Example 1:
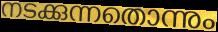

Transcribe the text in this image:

നടക്കുന്നതൊന്നും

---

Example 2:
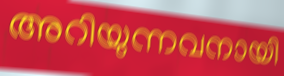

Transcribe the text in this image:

അറിയുന്നവനായി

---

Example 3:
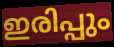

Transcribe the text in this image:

ഇരിപ്പും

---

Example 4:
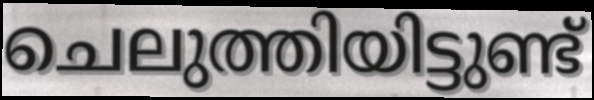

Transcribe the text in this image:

ചെലുത്തിയിട്ടുണ്ട്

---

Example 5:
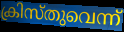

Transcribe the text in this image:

ക്രിസ്തുവെന്ന്